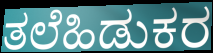
ತಲೆಹಿಡುಕರ